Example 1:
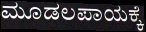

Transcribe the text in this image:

ಮೂಡಲಪಾಯಕ್ಕೆ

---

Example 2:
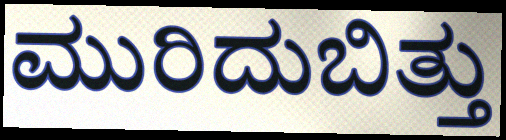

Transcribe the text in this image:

ಮುರಿದುಬಿತ್ತು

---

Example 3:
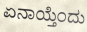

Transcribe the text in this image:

ಏನಾಯ್ತೆಂದು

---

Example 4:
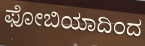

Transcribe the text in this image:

ಫೋಬಿಯಾದಿಂದ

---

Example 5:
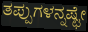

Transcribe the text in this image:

ತಪ್ಪುಗಳನ್ನಷ್ಟೇ